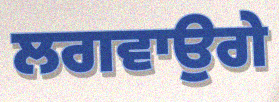
ਲਗਵਾਉਗੇ